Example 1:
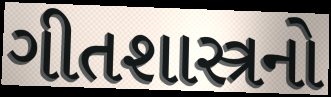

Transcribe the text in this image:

ગીતશાસ્ત્રનો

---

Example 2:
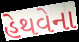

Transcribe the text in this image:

હેથવેના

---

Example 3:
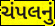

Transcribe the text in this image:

ચંપલનું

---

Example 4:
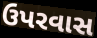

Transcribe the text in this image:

ઉપરવાસ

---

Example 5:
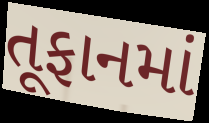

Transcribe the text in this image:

તૂફાનમાં